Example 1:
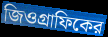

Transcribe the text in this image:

জিওগ্রাফিকের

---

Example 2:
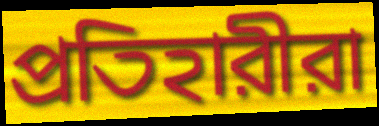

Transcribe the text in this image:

প্রতিহারীরা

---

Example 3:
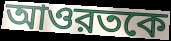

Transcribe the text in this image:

আওরতকে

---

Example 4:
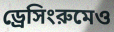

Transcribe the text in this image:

ড্রেসিংরুমেও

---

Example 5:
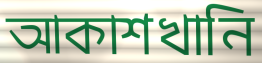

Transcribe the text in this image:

আকাশখানি